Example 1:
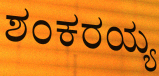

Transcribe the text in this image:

ಶಂಕರಯ್ಯ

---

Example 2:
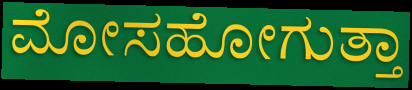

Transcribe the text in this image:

ಮೋಸಹೋಗುತ್ತಾ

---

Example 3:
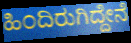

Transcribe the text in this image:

ಹಿಂದಿರುಗಿದ್ದೇನೆ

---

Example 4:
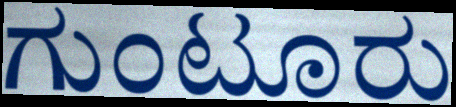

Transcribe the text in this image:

ಗುಂಟೂರು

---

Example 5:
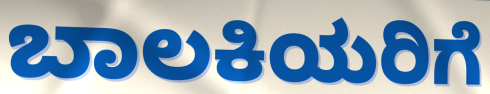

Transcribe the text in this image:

ಬಾಲಕಿಯರಿಗೆ